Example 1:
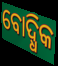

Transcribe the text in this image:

ବୋଦ୍ଧିକ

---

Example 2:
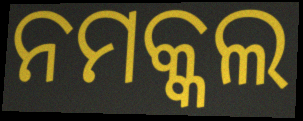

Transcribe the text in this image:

ନମକ୍କଲ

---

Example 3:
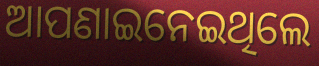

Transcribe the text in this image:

ଆପଣାଇନେଇଥିଲେ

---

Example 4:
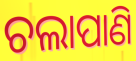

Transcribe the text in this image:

ଚଲାପାଣି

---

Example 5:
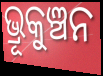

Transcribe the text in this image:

ଭ୍ରୂକୁଞ୍ଚନ